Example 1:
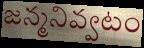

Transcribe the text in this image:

జన్మనివ్వటం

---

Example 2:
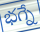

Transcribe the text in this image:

భగ్నే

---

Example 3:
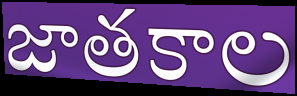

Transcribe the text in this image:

జాతకాల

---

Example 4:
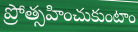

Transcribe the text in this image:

ప్రోత్సహించుకుంటాం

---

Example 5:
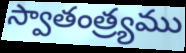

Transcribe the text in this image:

స్వాతంత్ర్యము